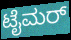
ಟೈಮರ್